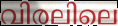
വിരലിലെ